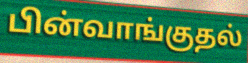
பின்வாங்குதல்